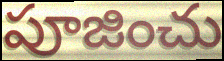
పూజించు